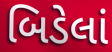
બિડેલાં